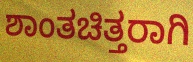
ಶಾಂತಚಿತ್ತರಾಗಿ